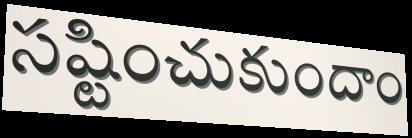
సష్టించుకుందాం